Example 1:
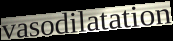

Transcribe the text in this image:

vasodilatation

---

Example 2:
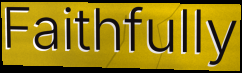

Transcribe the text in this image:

Faithfully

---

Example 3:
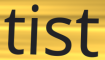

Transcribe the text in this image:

tist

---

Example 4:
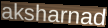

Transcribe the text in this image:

aksharnad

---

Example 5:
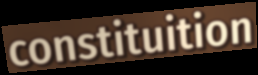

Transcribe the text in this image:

constituition